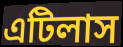
এটিলাস